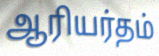
ஆரியர்தம்